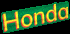
Honda